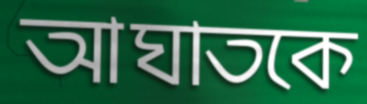
আঘাতকে